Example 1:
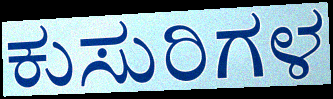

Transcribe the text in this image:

ಕುಸುರಿಗಳ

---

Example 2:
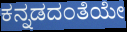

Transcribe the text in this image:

ಕನ್ನಡದಂತೆಯೇ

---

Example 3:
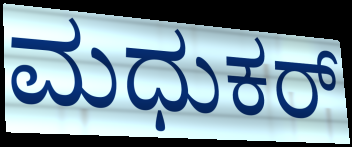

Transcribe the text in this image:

ಮಧುಕರ್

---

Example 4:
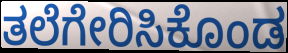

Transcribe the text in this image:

ತಲೆಗೇರಿಸಿಕೊಂಡ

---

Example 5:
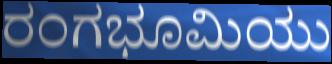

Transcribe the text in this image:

ರಂಗಭೂಮಿಯು